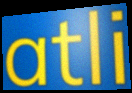
atli